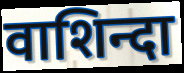
वाशिन्दा